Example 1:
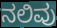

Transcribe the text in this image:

ನಲಿವು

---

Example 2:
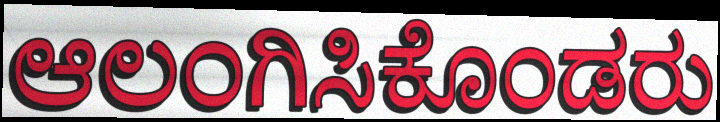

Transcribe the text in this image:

ಆಲಂಗಿಸಿಕೊಂಡರು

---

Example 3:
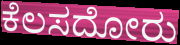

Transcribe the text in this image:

ಕೆಲಸದೋರು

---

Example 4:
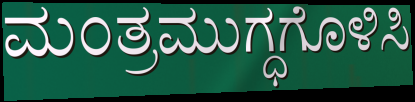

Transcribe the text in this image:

ಮಂತ್ರಮುಗ್ಧಗೊಳಿಸಿ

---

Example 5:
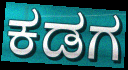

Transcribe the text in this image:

ಕಡಗ